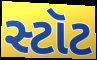
સ્ટૉટ